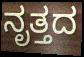
ನೃತ್ತದ